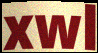
xwl